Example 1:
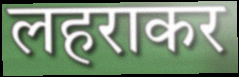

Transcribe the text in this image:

लहराकर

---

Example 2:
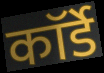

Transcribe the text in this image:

कॉर्डे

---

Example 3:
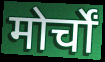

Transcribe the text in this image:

मोर्चों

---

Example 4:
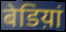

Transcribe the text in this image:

बेडिय़ां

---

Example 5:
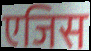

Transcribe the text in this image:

एजिस